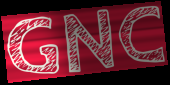
GNC